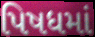
પિષધમાં